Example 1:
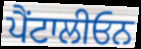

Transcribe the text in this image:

ਪੈਂਟਾਲੀਓਨ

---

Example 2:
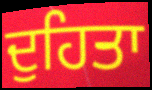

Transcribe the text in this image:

ਦੁਹਿਤਾ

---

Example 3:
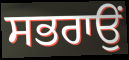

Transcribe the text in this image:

ਸਭਰਾਉਂ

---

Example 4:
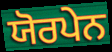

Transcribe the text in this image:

ਯੋਰਪੇਨ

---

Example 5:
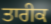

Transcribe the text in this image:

ਤਾਰੀਕ